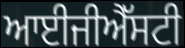
ਆਈਜੀਐੱਸਟੀ